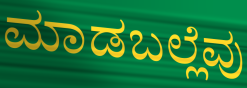
ಮಾಡಬಲ್ಲೆವು